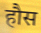
हौस